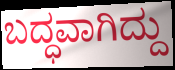
ಬದ್ಧವಾಗಿದ್ದು